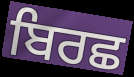
ਬਿਰਛ